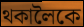
থকালৈকে